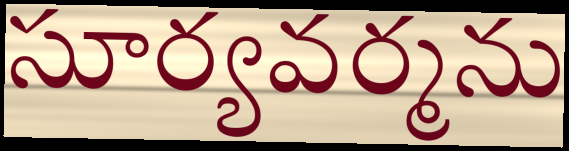
సూర్యవర్మను